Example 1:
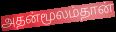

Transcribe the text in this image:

அதன்மூலம்தான்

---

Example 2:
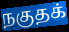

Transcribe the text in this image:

நகுதக்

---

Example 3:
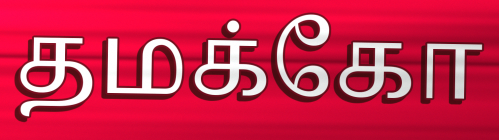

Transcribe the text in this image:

தமக்கோ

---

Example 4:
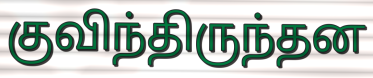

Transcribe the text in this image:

குவிந்திருந்தன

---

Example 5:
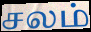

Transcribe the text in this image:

சலம்